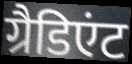
ग्रैडिएंट